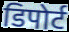
डिपोर्ट